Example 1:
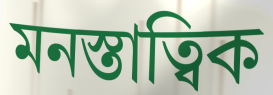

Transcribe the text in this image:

মনস্তাত্বিক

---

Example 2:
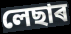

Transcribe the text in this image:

লেছাৰ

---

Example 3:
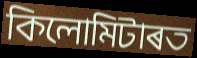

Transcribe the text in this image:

কিলোমিটাৰত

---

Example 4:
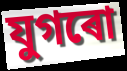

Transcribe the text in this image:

যুগৰো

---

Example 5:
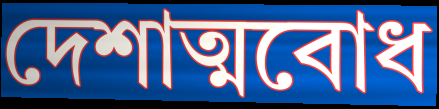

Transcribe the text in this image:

দেশাত্মবোধ